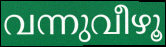
വന്നുവീഴൂ